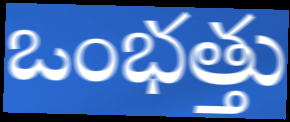
ఒంభత్తు